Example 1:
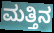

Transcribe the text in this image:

ಮತ್ತಿನ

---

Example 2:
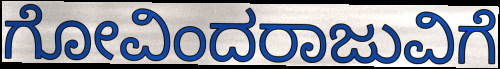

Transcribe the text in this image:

ಗೋವಿಂದರಾಜುವಿಗೆ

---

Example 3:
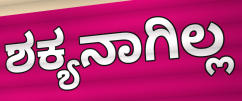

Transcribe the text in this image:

ಶಕ್ಯನಾಗಿಲ್ಲ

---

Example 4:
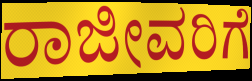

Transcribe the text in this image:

ರಾಜೀವರಿಗೆ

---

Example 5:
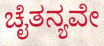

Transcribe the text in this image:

ಚೈತನ್ಯವೇ